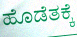
ಹೊಡೆತಕ್ಕೆ